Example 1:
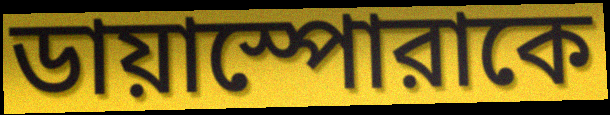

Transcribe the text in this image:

ডায়াস্পোরাকে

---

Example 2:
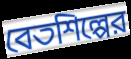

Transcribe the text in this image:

বেতশিল্পের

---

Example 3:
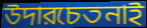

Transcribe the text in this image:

উদারচেতনাই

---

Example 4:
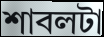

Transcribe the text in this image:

শাবলটা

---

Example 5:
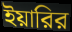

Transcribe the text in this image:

ইয়ারির